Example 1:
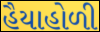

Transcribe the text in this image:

હૈયાહોળી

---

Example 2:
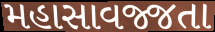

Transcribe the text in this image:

મહાસાવજ્જતા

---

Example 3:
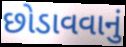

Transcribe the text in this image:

છોડાવવાનું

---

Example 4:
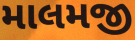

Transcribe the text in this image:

માલમજી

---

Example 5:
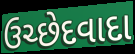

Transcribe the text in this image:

ઉચ્છેદવાદા